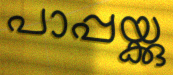
പാപ്പയ്ക്കു